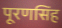
पूरणसिंह